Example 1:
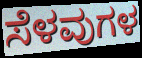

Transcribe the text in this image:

ಸೆಳವುಗಳ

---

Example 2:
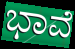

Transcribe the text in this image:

ಭಾವೆ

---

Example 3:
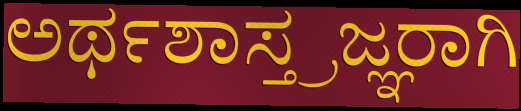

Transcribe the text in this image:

ಅರ್ಥಶಾಸ್ತ್ರಜ್ಞರಾಗಿ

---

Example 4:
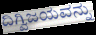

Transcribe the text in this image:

ದಿಗ್ವಿಜಯವನ್ನು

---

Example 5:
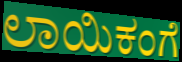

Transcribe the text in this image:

ಲಾಯಿಕಂಗೆ